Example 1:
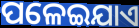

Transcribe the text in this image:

ପଳେଇଯାଏ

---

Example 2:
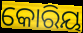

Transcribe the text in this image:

କୋରିୟ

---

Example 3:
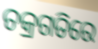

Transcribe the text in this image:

ଚକ୍ରଗତିରେ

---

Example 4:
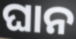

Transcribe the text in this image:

ଘାନ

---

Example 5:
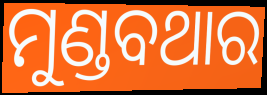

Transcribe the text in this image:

ମୁଣ୍ଡବଥାର